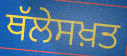
ਥੱਲੇਸਖ਼ਤ